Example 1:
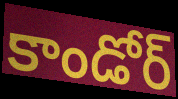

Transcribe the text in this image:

కాండోర్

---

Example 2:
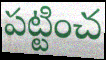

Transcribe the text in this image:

పట్టించ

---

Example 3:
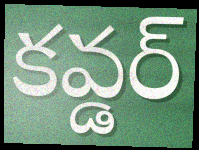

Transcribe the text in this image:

కవ్డర్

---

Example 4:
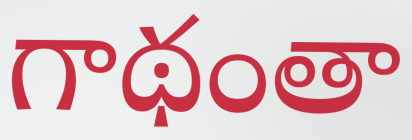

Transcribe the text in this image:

గాథంతా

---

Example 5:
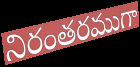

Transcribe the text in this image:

నిరంతరముగా